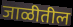
जाळीतील